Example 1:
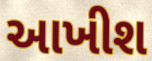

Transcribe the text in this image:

આખીશ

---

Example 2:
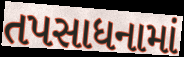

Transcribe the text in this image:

તપસાધનામાં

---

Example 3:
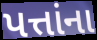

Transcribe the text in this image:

પત્તાંના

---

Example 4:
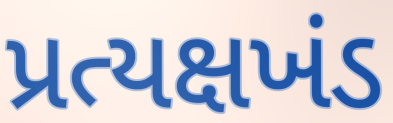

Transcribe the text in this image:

પ્રત્યક્ષખંડ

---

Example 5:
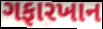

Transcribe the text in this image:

ગફારખાન